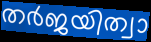
തർജയിത്വാ